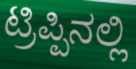
ಟ್ರಿಪ್ಪಿನಲ್ಲಿ